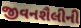
જીવનશૈલીની